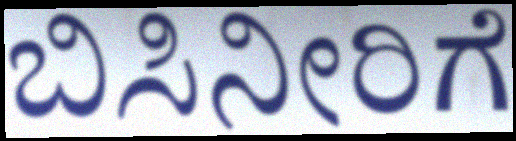
ಬಿಸಿನೀರಿಗೆ